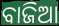
ବାଜିଆ